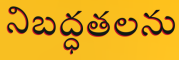
నిబద్ధతలను